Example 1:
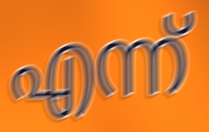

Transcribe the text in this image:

എന്ന്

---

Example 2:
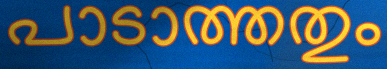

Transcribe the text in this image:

പാടാത്തതും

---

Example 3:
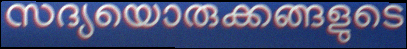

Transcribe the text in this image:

സദ്യയൊരുക്കങ്ങളുടെ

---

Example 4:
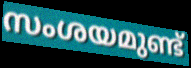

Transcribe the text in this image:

സംശയമുണ്ട്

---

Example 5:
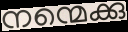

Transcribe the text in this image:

നന്മെക്കു